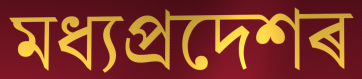
মধ্যপ্ৰদেশৰ